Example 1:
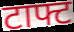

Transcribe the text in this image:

टाफ्ट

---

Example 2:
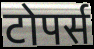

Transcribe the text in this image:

टोपर्स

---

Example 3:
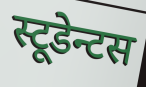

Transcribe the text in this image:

स्टूडेन्टस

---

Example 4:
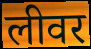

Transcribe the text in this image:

लीवर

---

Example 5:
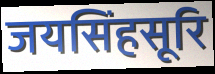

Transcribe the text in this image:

जयसिंहसूरि